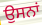
ਉਸਨਾਂ